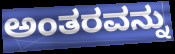
ಅಂತರವನ್ನು